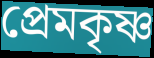
প্রেমকৃষ্ণ